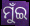
ମୁଁଇ